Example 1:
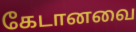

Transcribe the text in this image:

கேடானவை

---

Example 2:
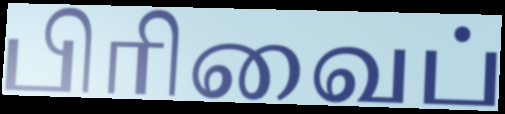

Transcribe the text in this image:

பிரிவைப்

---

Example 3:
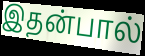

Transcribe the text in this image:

இதன்பால்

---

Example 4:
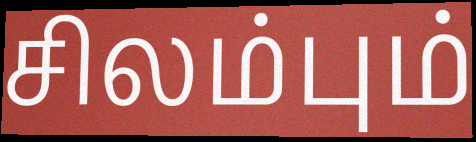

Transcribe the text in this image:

சிலம்பும்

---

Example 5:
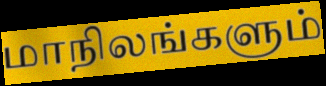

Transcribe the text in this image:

மாநிலங்களும்